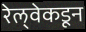
रेल्वेकडून